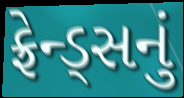
ફ્રેન્ડ્સનું